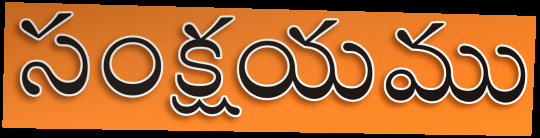
సంక్షయము